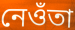
নেওঁতা